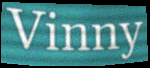
Vinny